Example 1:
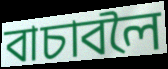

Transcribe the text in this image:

বাচাবলৈ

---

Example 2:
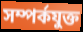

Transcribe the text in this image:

সম্পৰ্কযুক্ত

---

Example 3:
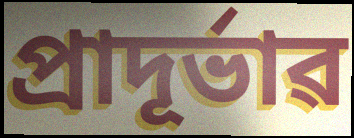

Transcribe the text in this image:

প্ৰাদূৰ্ভাৱ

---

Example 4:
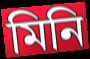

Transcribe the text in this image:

মিনি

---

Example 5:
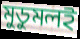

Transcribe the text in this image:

মুডুমলই